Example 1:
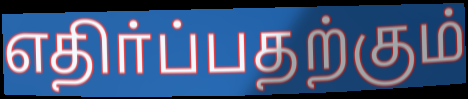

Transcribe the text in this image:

எதிர்ப்பதற்கும்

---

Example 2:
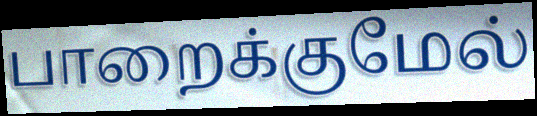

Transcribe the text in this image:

பாறைக்குமேல்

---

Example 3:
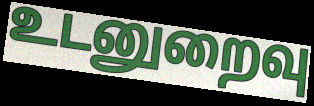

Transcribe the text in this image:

உடனுறைவு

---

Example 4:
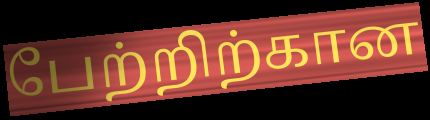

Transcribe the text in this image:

பேற்றிற்கான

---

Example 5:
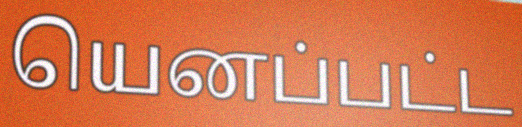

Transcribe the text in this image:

யெனப்பட்ட